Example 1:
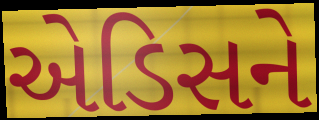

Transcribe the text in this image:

એડિસને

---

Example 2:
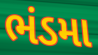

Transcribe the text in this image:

ભંડમા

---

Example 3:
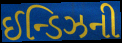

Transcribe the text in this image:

ઈન્ડિઝની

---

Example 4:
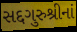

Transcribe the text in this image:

સદ્દગુરુશ્રીનાં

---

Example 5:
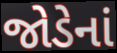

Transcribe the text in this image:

જોડેનાં